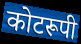
कोटरूपी